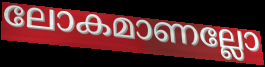
ലോകമാണല്ലോ